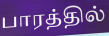
பாரத்தில்